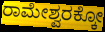
ರಾಮೇಶ್ವರಕ್ಕೋ